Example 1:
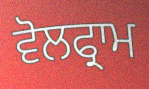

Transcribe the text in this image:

ਵੋਲਫ੍ਰਾਮ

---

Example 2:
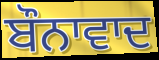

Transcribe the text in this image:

ਬੌਨਾਵਾਦ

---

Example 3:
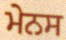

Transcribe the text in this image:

ਮੇਨਸ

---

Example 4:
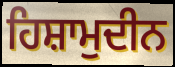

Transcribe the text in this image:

ਹਿਸ਼ਾਮੁਦੀਨ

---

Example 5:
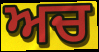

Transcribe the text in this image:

ਅਚ